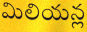
మిలియన్ల